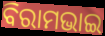
ବିରାମଭାଇ